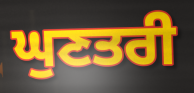
ਘੁਣਤਰੀ